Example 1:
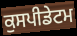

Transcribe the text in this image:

ਕੁਸਪੀਡੇਟਮ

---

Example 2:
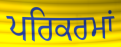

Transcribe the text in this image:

ਪਰਿਕਰਮਾਂ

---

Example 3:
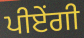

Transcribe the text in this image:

ਪੀਏਂਗੀ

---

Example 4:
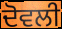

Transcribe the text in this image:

ਦੋਵਲੀ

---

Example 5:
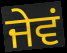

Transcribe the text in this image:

ਜੇਵਂ